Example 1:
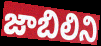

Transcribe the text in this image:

జాబిలిని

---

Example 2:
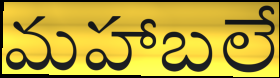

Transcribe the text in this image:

మహాబలే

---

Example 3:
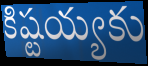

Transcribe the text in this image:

కిష్టయ్యకు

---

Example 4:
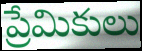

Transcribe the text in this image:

ప్రేమికులు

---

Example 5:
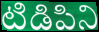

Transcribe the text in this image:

టిడిపిని